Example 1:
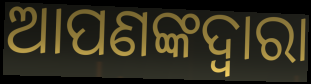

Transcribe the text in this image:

ଆପଣଙ୍କଦ୍ଵାରା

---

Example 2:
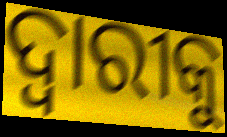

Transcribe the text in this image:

ଦ୍ଵାରୀକୁ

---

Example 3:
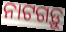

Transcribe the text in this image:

ନାଟଗଡ଼ୁ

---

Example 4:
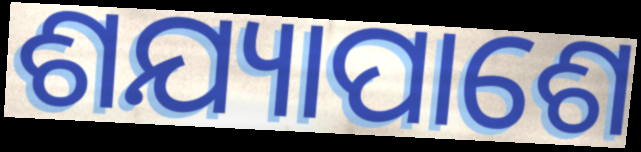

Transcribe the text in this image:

ଶଯ୍ୟାପାଶେ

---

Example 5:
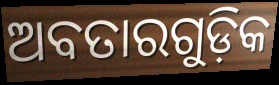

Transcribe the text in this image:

ଅବତାରଗୁଡ଼ିକ